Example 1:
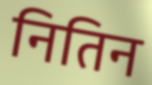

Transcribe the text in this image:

नितिन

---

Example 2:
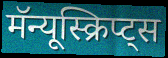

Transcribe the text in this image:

मॅन्यूस्क्रिप्ट्स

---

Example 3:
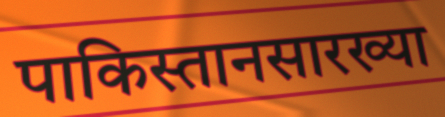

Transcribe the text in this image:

पाकिस्तानसारख्या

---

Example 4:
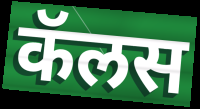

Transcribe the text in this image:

कॅलस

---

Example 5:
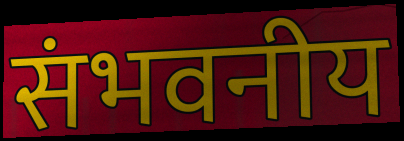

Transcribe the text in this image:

संभवनीय